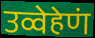
उव्वेहेणं